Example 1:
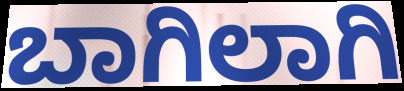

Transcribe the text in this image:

ಬಾಗಿಲಾಗಿ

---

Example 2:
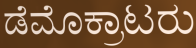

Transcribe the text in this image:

ಡೆಮೊಕ್ರಾಟರು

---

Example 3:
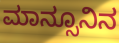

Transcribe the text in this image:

ಮಾನ್ಸೂನಿನ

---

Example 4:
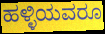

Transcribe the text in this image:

ಹಳ್ಳಿಯವರೂ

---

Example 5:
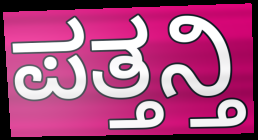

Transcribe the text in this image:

ಪತ್ತನ್ತಿ